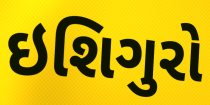
ઇશિગુરો